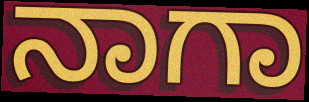
ನಾಗಾ